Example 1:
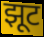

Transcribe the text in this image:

झूट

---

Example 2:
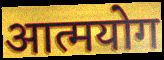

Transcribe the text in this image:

आत्मयोग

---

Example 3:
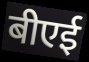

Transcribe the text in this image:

बीएई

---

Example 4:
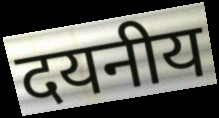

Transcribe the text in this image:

दयनीय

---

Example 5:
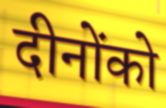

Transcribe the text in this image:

दीनोंको